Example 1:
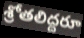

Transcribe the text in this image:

శ్రోతలిద్దరూ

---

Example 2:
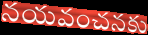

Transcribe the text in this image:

నయవంచనకు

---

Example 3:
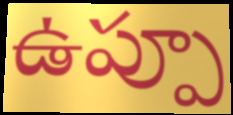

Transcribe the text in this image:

ఉప్పూ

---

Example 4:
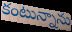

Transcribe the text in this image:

కంటున్నాను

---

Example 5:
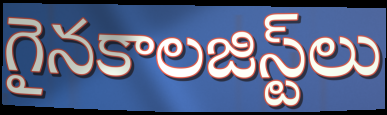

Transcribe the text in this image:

గైనకాలజిస్ట్‌లు